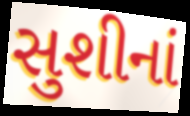
સુશીનાં